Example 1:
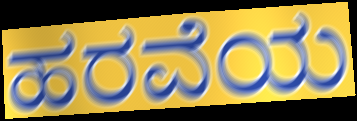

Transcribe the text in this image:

ಹರವೆಯ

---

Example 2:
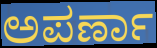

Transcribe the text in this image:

ಅಪರ್ಣಾ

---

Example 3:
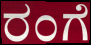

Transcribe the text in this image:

ರಂಗೆ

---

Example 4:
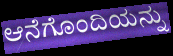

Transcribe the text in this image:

ಆನೆಗೊಂದಿಯನ್ನು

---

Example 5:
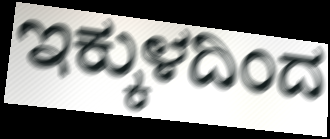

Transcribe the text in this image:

ಇಕ್ಕುಳದಿಂದ